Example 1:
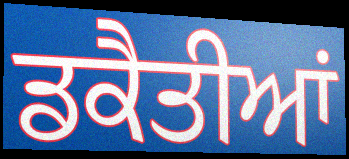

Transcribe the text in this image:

ਡਕੈਤੀਆਂ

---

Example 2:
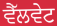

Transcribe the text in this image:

ਵੈੱਲਵੇਟ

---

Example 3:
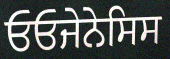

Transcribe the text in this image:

ਓਓਜੇਨੇਸਿਸ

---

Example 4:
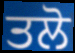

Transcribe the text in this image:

ਤਲੋ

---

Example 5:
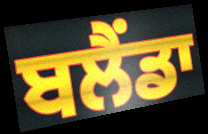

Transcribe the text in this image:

ਬਲੈਂਡਾ